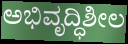
ಅಭಿವೃದ್ಧಿಶೀಲ